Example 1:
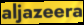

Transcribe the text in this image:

aljazeera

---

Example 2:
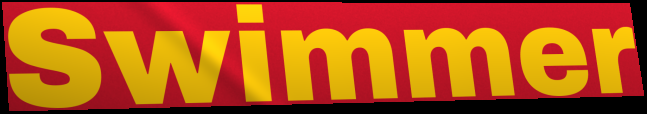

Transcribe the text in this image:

Swimmer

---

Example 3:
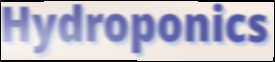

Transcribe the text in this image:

Hydroponics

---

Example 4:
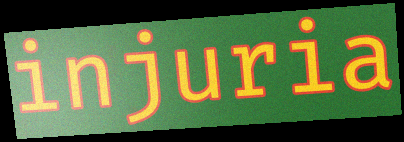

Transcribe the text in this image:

injuria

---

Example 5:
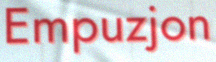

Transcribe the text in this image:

Empuzjon